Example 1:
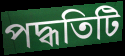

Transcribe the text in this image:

পদ্ধতিটি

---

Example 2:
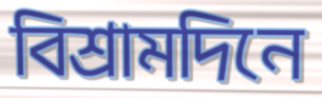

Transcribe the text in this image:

বিশ্রামদিনে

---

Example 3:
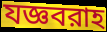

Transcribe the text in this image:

যজ্ঞবরাহ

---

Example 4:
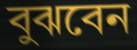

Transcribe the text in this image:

বুঝবেন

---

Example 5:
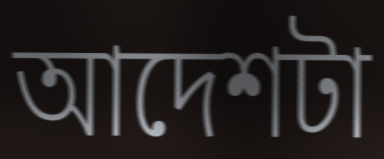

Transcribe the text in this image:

আদেশটা